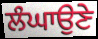
ਲੰਘਾਉਣੇ